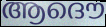
ആദൌ